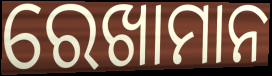
ରେଖାମାନ